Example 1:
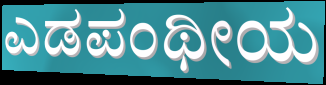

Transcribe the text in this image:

ಎಡಪಂಥೀಯ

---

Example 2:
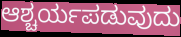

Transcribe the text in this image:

ಆಶ್ಚರ್ಯಪಡುವುದು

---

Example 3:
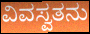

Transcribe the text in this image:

ವಿವಸ್ವತನು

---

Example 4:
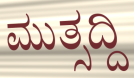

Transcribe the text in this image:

ಮುತ್ಸದ್ದಿ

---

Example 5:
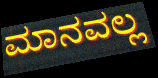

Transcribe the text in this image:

ಮಾನವಲ್ಲ